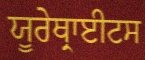
ਯੂਰੇਥ੍ਰਾਈਟਸ